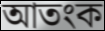
আতংক